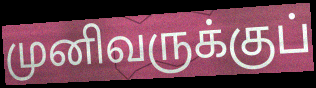
முனிவருக்குப்